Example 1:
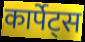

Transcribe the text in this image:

कार्पेट्स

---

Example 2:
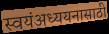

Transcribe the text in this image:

स्वयंअध्ययनासाठी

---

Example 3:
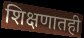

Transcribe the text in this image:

शिक्षणातही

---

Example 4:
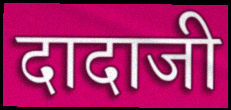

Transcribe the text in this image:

दादाजी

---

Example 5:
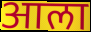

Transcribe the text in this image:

आला